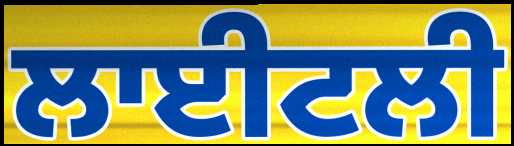
ਲਾਈਟਲੀ